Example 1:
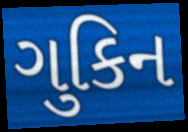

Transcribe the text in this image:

ગુકિન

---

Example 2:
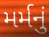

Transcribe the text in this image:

મર્મનું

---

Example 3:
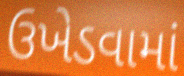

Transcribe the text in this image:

ઉખેડવામાં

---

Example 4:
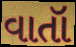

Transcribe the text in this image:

વાતૉ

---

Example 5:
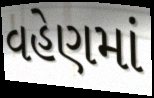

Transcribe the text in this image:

વહેણમાં